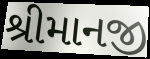
શ્રીમાનજી